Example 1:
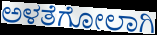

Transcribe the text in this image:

ಅಳತೆಗೋಲಾಗಿ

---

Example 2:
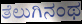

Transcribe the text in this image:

ತೆಲುಗಿನಂಥ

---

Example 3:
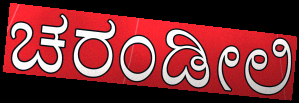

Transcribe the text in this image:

ಚರಂಡೀಲಿ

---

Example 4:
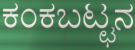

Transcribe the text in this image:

ಕಂಕಬಟ್ಟನ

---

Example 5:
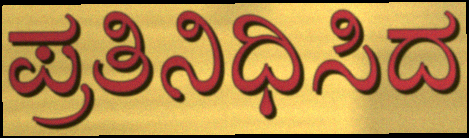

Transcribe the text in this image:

ಪ್ರತಿನಿಧಿಸಿದ